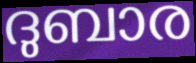
ദുബാര